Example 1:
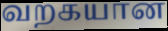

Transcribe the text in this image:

வறகயான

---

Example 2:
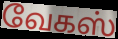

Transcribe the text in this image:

வேகஸ்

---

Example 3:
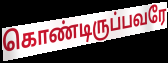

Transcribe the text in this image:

கொண்டிருப்பவரே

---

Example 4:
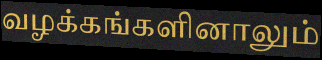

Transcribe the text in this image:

வழக்கங்களினாலும்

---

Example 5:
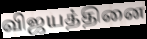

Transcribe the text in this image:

விஜயத்தினை